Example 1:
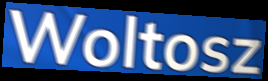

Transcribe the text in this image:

Woltosz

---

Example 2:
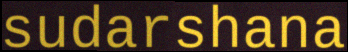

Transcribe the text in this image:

sudarshana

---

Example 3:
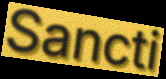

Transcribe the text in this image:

Sancti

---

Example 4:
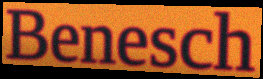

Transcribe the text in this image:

Benesch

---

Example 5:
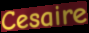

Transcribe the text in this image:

Cesaire